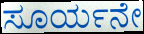
ಸೂರ್ಯನೇ